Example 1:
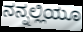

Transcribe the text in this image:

ನನ್ನಲ್ಲಿಯೂ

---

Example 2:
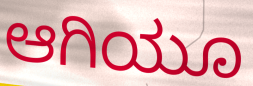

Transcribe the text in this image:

ಆಗಿಯೂ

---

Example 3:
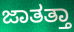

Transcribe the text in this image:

ಜಾತತ್ತಾ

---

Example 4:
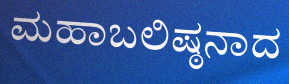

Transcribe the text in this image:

ಮಹಾಬಲಿಷ್ಠನಾದ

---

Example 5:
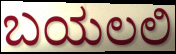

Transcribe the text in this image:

ಬಯಲಲಿ